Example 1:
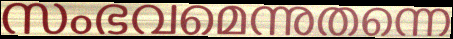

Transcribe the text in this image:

സംഭവമെന്നുതന്നെ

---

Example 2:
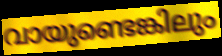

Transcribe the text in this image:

വായുണ്ടെങ്കിലും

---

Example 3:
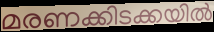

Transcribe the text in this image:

മരണക്കിടക്കയിൽ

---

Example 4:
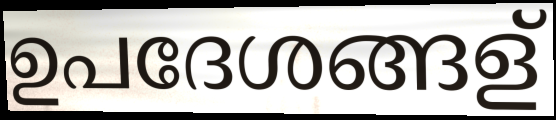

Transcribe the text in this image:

ഉപദേശങ്ങള്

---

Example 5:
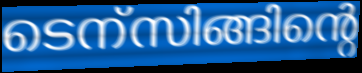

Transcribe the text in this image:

ടെന്സിങ്ങിന്റെ